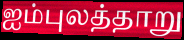
ஐம்புலத்தாறு